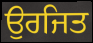
ਉਰਜਿਤ